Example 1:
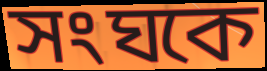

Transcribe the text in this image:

সংঘকে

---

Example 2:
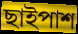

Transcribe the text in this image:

ছাইপাশ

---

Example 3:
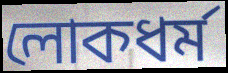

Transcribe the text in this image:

লোকধর্ম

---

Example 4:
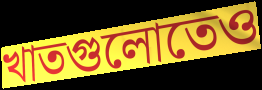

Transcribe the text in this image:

খাতগুলোতেও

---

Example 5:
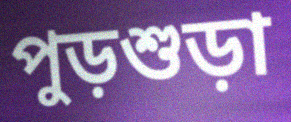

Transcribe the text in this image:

পুড়শুড়া